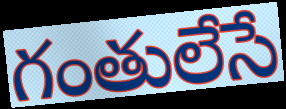
గంతులేసే